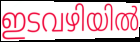
ഇടവഴിയിൽ